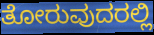
ತೋರುವುದರಲ್ಲಿ